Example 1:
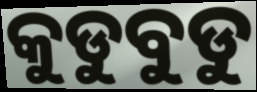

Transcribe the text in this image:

କୁଡୁବୁଡୁ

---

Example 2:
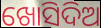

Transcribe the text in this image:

ଖୋସିଦିଅ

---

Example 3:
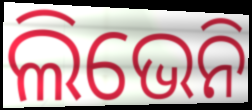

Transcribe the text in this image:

ଲିଭେନି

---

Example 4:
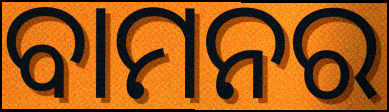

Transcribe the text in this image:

ବାମନର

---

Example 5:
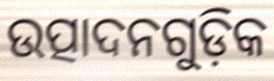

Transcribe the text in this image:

ଉତ୍ପାଦନଗୁଡ଼ିକ